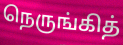
நெருங்கித்